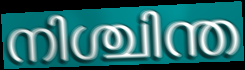
നിശ്ചിന്ത